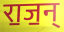
रा॒ज॒न्